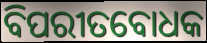
ବିପରୀତବୋଧକ